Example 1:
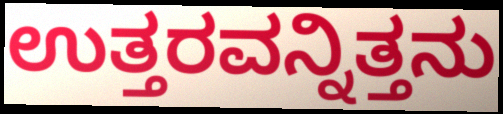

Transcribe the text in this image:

ಉತ್ತರವನ್ನಿತ್ತನು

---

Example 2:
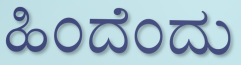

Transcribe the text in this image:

ಹಿಂದೆಂದು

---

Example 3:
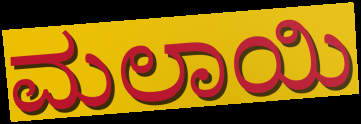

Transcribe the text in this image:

ಮಲಾಯಿ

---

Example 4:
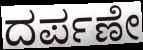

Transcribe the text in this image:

ದರ್ಪಣೇ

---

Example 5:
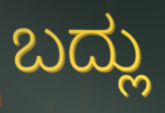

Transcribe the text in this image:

ಬದ್ಲು